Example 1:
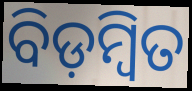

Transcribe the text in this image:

ବିଡ଼ମ୍ବିତ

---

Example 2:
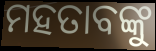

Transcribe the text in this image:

ମହତାବଙ୍କୁ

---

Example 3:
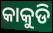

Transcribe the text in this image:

କାକୁଡି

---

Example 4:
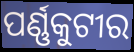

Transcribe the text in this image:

ପର୍ଣ୍ଣକୁଟୀର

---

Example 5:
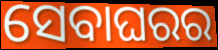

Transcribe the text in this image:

ସେବାଘରର